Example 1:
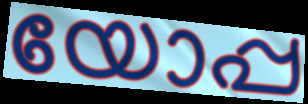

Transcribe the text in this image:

യോപ്പ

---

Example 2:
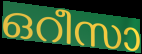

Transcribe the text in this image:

ഒറീസാ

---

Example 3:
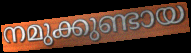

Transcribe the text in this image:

നമുക്കുണ്ടായ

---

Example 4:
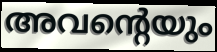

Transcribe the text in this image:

അവന്റെയും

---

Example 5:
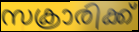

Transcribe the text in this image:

സക്രാരിക്ക്